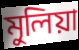
মুলিয়া